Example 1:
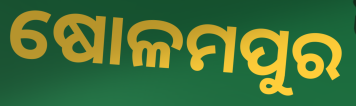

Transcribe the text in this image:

ଷୋଳମପୁର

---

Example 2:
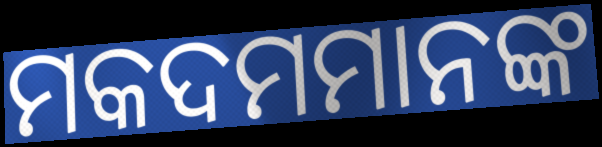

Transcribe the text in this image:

ମକଦମମାନଙ୍କ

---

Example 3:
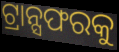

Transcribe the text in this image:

ଟ୍ରାନ୍ସଫରକୁ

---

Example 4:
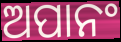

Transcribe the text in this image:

ଅପାନଂ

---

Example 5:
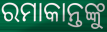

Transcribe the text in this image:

ରମାକାନ୍ତଙ୍କୁ